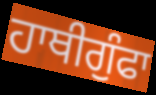
ਹਾਥੀਗੁੰਫਾ